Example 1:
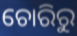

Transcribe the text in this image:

ଚୋରିରୁ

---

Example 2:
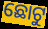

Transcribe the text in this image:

ଛୋଟୁ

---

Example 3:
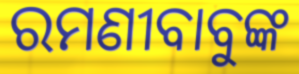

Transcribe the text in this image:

ରମଣୀବାବୁଙ୍କ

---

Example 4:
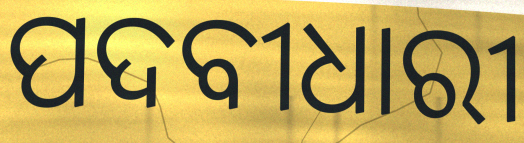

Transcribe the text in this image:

ପଦବୀଧାରୀ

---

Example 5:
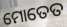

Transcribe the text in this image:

ମୋତେତ